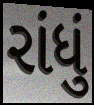
રાંધું